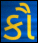
કૌ